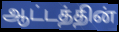
ஆட்டத்தின்